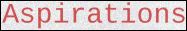
Aspirations